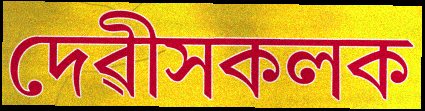
দেৱীসকলক